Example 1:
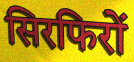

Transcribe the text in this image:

सिरफिरों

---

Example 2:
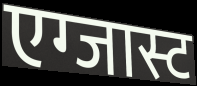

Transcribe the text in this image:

एग्जास्ट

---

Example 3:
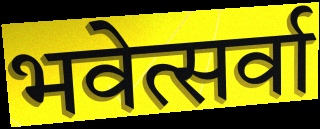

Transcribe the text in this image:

भवेत्सर्वा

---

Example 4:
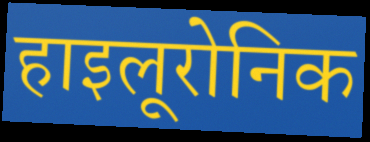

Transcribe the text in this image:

हाइलूरोनिक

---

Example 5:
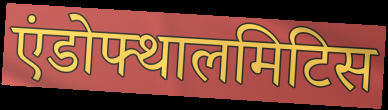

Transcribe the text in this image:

एंडोफ्थालमिटिस